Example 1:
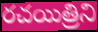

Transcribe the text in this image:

రచయిత్రిని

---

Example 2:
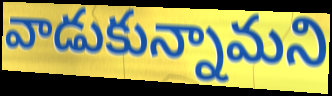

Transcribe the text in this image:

వాడుకున్నామని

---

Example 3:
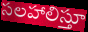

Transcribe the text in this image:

సలహాలిస్తూ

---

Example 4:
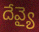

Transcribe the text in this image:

దేవ్యై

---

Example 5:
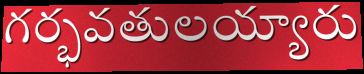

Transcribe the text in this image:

గర్భవతులయ్యారు